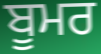
ਬੂਮਰ